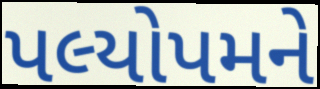
પલ્યોપમને